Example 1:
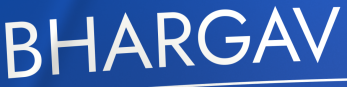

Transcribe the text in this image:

BHARGAV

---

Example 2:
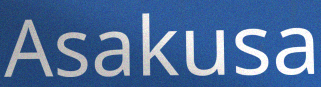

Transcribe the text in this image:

Asakusa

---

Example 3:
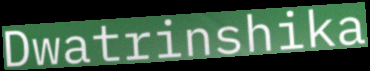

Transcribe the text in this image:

Dwatrinshika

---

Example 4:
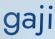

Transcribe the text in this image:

gaji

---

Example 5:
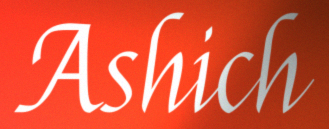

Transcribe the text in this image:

Ashich